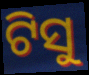
ଟିସୁ